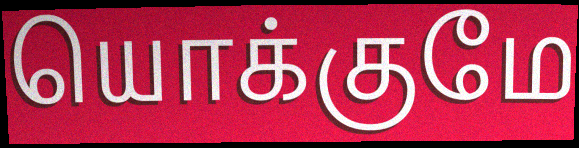
யொக்குமே